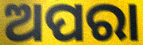
ଅପରା